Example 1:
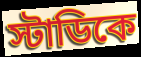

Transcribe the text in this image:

স্টাডিকে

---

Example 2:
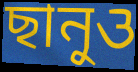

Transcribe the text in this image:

ছানুও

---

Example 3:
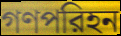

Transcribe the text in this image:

গণপরিহন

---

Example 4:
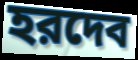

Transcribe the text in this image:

হরদেব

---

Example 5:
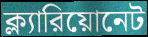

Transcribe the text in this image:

ক্ল্যারিয়োনেট